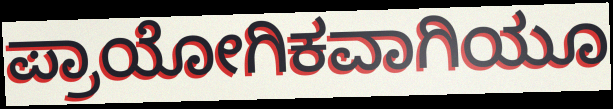
ಪ್ರಾಯೋಗಿಕವಾಗಿಯೂ